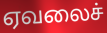
ஏவலைச்